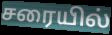
சரையில்